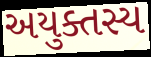
અયુક્તસ્ય